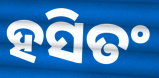
ହସିତଂ